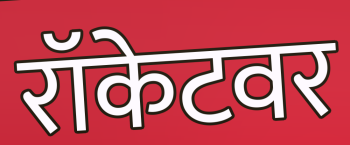
रॉकेटवर